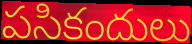
పసికందులు